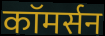
कॉमर्सन